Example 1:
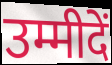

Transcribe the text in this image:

उम्‍मीदें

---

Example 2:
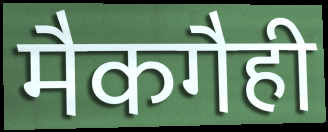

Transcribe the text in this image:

मैकगैही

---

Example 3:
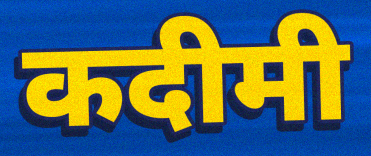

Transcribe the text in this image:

कदीमी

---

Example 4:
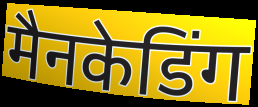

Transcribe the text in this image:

मैनकेडिंग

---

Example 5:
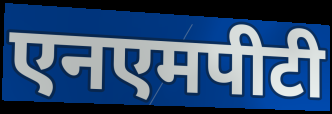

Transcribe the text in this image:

एनएमपीटी